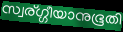
സ്വര്ഗ്ഗീയാനുഭൂതി